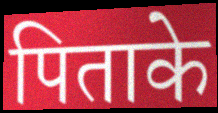
पिताके